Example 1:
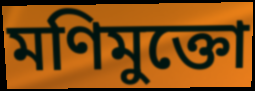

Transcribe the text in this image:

মণিমুক্তো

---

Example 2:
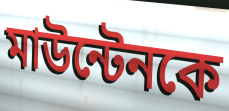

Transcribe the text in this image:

মাউন্টেনকে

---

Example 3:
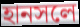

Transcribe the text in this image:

হানসলে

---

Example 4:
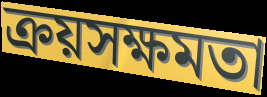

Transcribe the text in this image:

ক্রয়সক্ষমতা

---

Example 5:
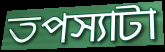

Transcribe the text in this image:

তপস্যাটা